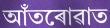
আঁতৰোৱাত